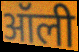
ऑली